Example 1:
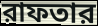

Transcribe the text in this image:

রাফতার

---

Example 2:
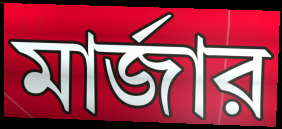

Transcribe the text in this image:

মার্জার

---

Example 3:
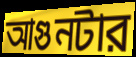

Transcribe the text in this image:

আগুনটার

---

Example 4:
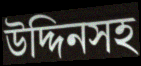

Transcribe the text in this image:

উদ্দিনসহ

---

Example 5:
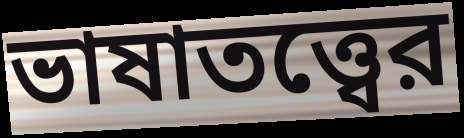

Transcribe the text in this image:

ভাষাতত্ত্বের